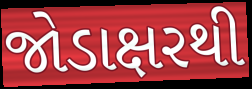
જોડાક્ષરથી